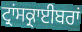
ਟ੍ਰਾਂਸਕ੍ਰਾਈਬਰਾਂ